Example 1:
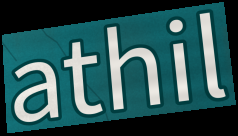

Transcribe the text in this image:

athil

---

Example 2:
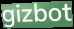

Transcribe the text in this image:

gizbot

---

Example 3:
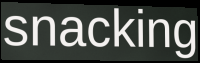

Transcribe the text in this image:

snacking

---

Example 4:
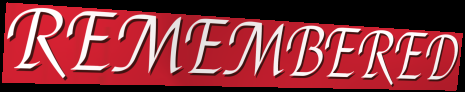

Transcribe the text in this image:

REMEMBERED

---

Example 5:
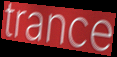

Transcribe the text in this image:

trance